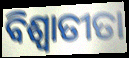
ବିଶ୍ଵାତୀତା